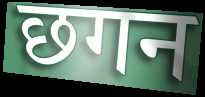
छगन